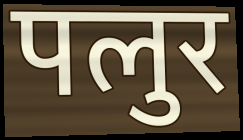
पलुर